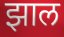
झाल